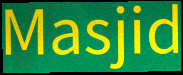
Masjid